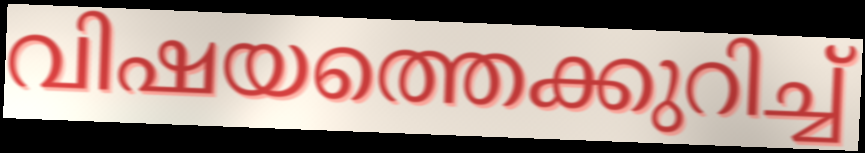
വിഷയത്തെക്കുറിച്ച്